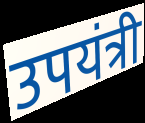
उपयंत्री